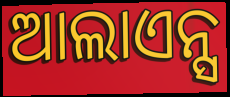
ଆଲାଏନ୍ସ